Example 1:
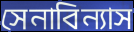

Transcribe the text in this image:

সেনাবিন্যাস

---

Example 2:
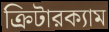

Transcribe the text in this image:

ক্রিটারক্যাম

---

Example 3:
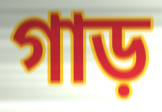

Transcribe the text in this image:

গাড়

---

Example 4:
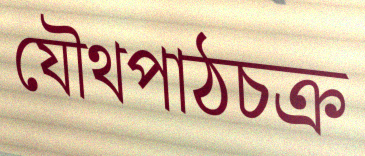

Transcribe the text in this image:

যৌথপাঠচক্র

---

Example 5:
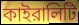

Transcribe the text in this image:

কাইরালিটি